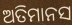
ଅତିମାନସ